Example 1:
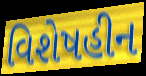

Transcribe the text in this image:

વિશેષહીન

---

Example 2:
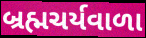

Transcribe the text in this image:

બ્રહ્મચર્યવાળા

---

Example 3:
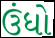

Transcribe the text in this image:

ઉંધો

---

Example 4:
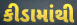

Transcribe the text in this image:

કીડામાંથી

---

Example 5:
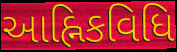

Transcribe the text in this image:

આહ્નિકવિધિ